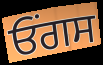
ਓਂਗਸ